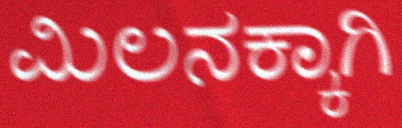
ಮಿಲನಕ್ಕಾಗಿ